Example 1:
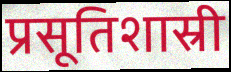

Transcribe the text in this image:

प्रसूतिशास्री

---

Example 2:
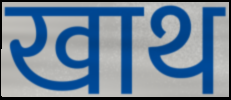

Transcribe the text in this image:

खाथ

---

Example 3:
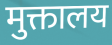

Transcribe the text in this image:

मुक्तालय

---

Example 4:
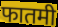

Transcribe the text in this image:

फातमी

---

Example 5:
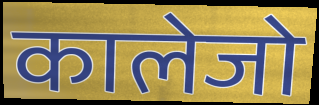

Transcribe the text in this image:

कालेजो